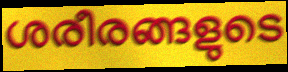
ശരീരങ്ങളുടെ